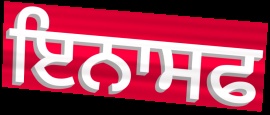
ਇਨਾਸਫ